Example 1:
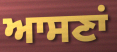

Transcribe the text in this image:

ਆਸਣਾਂ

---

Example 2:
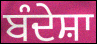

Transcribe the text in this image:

ਬੰਦੇਸ਼ਾ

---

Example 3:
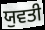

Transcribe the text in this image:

ਯੁਵਤੀ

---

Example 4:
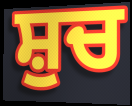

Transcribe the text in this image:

ਸ਼ੁਚ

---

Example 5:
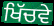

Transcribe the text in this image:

ਖਿੱਚਵੇ